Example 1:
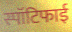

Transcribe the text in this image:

स्पॉटिफाई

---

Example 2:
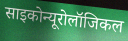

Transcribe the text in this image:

साइकोन्यूरोलॉजिकल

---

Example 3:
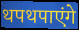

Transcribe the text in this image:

थपथपाएंगे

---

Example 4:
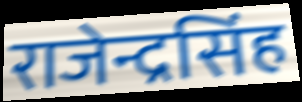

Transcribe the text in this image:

राजेन्द्रसिंह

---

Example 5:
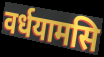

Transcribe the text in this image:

वर्धयामसि